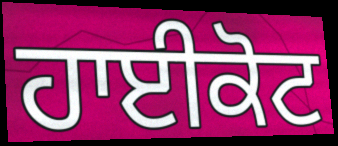
ਹਾਈਕੋਟ